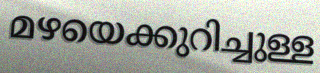
മഴയെക്കുറിച്ചുള്ള